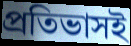
প্রতিভাসই